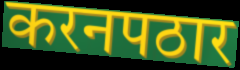
करनपठार